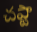
చఎ్టా